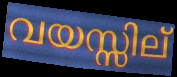
വയസ്സില്